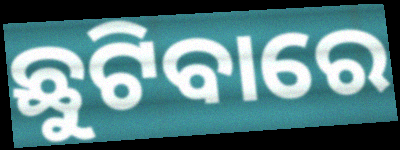
ଛୁଟିବାରେ